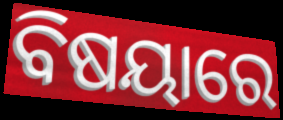
ବିଷୟାରେ